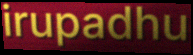
irupadhu